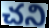
చని